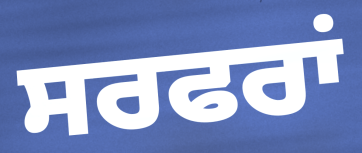
ਸਰਫਰਾਂ